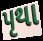
પૃથા